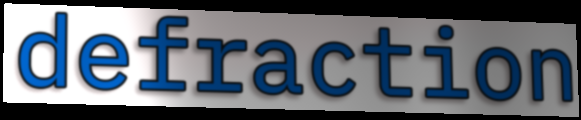
defraction